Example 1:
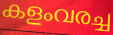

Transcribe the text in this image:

കളംവരച്ച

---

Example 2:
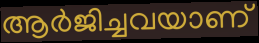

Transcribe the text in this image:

ആർജിച്ചവയാണ്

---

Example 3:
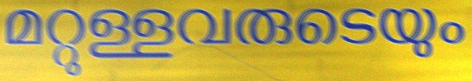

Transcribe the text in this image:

മറ്റുള്ളവരുടെയും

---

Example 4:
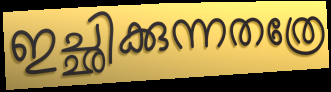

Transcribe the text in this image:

ഇച്ഛിക്കുന്നതത്രേ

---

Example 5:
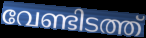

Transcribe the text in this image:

വേണ്ടിടത്ത്